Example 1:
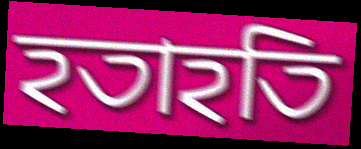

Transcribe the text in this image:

হতাহতি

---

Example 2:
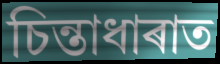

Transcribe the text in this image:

চিন্তাধাৰাত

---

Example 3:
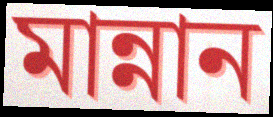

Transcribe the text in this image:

মান্নান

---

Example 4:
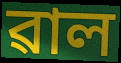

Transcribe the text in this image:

ৱাল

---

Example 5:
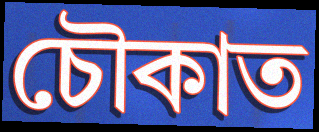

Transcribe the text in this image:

চৌকাত